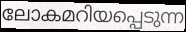
ലോകമറിയപ്പെടുന്ന